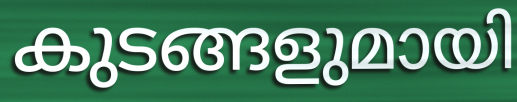
കുടങ്ങളുമായി